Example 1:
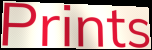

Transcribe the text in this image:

Prints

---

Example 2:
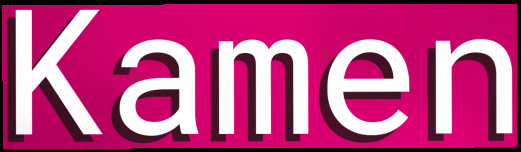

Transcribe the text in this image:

Kamen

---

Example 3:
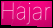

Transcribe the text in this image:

Hajar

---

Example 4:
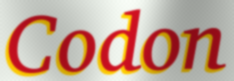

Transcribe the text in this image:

Codon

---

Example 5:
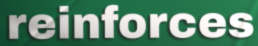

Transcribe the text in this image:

reinforces